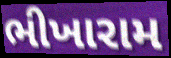
ભીખારામ